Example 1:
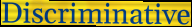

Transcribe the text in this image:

Discriminative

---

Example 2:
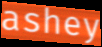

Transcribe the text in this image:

ashey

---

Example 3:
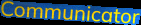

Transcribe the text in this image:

Communicator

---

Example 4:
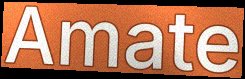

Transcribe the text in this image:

Amate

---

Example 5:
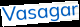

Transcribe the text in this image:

Vasagar